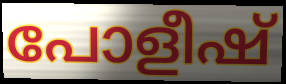
പോളീഷ്